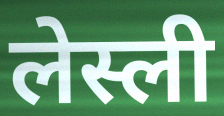
लेस्ली